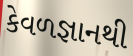
કેવળજ્ઞાનથી